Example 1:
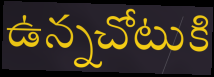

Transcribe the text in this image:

ఉన్నచోటుకి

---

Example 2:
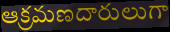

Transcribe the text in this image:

ఆక్రమణదారులుగా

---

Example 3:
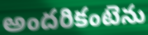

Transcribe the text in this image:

అందరికంటెను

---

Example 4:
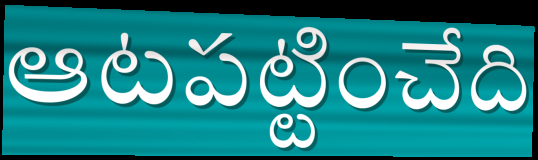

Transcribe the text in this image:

ఆటపట్టించేది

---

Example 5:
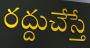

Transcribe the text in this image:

రద్దుచేస్తే